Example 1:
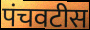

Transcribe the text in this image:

पंचवटीस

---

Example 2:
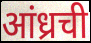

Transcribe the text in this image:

आंध्रची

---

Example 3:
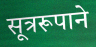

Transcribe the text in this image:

सूत्ररूपाने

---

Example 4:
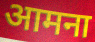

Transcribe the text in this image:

आमना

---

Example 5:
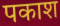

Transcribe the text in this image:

पकाश